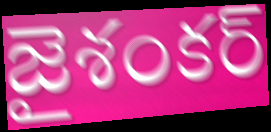
జైశంకర్